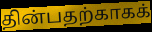
தின்பதற்காகக்